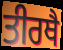
ਤੀਰਥੈ